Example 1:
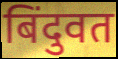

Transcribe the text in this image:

बिंदुवत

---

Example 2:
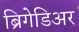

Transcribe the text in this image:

ब्रिगेडिअर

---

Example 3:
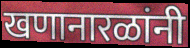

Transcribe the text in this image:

खणानारळांनी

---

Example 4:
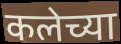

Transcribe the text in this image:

कलेच्या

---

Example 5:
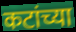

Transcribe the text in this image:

कटांच्या